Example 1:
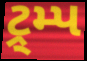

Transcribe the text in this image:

ટ્ર્મ્પ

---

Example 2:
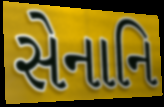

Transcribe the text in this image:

સેનાનિ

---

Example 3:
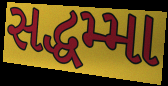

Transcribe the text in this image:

સદ્ધમ્મા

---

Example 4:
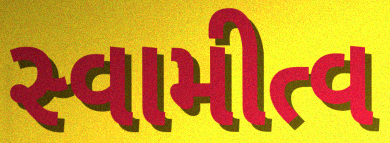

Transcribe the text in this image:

સ્વામીત્વ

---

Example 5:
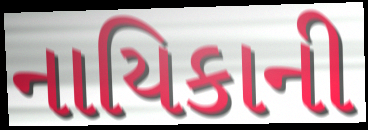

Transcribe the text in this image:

નાયિકાની